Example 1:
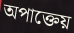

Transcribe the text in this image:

অপাক্তেয়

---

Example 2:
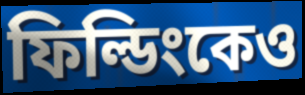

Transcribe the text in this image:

ফিল্ডিংকেও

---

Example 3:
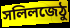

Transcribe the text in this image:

সলিলজেঠু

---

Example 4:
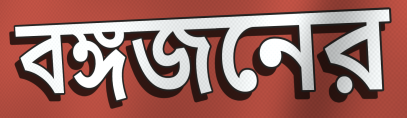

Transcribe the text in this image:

বঙ্গজনের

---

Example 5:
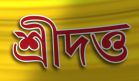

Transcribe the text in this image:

শ্রীদত্ত